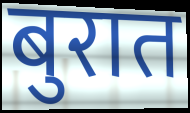
बुरात